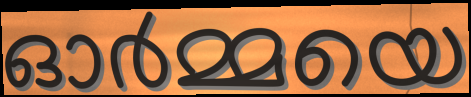
ഓർമ്മയെ